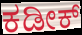
ಕಡೀಕ್